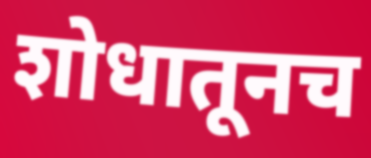
शोधातूनच